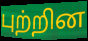
புற்றின